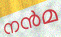
നൻമ